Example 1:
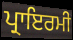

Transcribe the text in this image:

ਪ੍ਰਾਇਰਮੀ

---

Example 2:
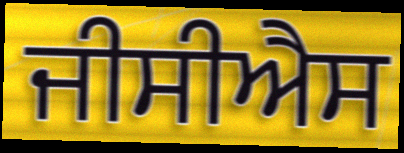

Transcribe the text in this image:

ਜੀਸੀਐਸ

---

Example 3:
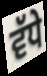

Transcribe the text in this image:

ਵੱਧੇ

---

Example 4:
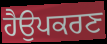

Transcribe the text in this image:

ਹੈਉਪਕਰਣ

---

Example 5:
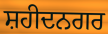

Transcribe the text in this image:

ਸ਼ਹੀਦਨਗਰ